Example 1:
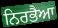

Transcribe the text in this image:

ਨਿਰਭੈਆ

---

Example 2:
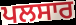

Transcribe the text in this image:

ਪਲਸਾਰ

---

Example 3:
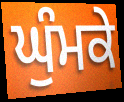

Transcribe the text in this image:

ਘੁੰਮਕੇ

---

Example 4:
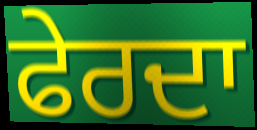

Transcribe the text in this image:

ਫੇਰਦਾ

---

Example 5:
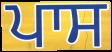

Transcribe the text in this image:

ਪਾਸ